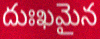
దుఃఖమైన